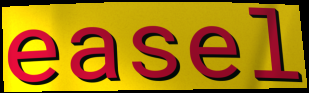
easel